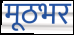
मूठभर